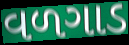
વળગાડ